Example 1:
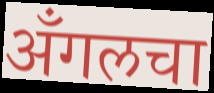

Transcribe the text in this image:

अँगलचा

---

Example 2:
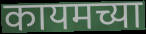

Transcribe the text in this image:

कायमच्या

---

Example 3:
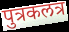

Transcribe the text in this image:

पुत्रकलत्र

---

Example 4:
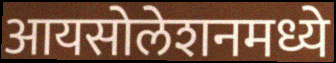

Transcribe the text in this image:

आयसोलेशनमध्ये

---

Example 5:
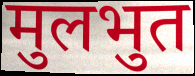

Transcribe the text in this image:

मुलभुत